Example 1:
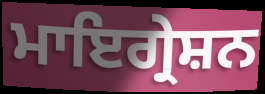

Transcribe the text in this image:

ਮਾਇਗ੍ਰੇਸ਼ਨ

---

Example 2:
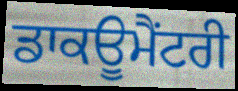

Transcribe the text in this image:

ਡਾਕਊਮੈਂਟਰੀ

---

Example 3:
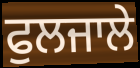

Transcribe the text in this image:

ਫੁਲਜਾਲੇ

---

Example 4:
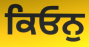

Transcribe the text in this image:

ਕਿਓਨੁ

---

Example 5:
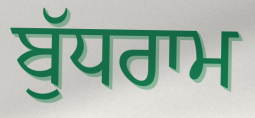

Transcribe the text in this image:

ਬੁੱਧਰਾਮ